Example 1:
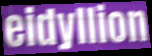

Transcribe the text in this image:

eidyllion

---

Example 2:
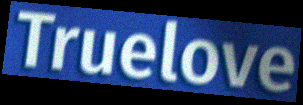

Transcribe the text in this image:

Truelove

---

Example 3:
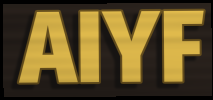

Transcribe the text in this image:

AIYF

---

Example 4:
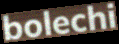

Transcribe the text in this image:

bolechi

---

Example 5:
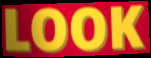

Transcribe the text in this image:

LOOK